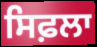
ਸਿਫ਼ਲਾ